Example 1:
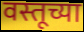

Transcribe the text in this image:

वस्तूच्या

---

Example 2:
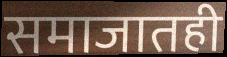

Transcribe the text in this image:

समाजातही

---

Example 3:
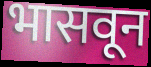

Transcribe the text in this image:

भासवून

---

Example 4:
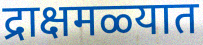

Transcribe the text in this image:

द्राक्षमळ्यात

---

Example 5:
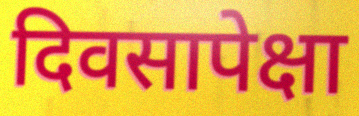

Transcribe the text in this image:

दिवसापेक्षा